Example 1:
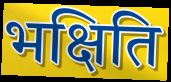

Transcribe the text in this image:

भक्षिति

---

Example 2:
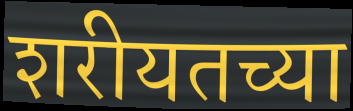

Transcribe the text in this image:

शरीयतच्या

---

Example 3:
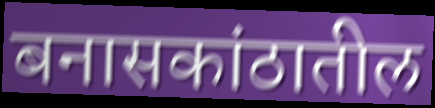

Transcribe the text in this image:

बनासकांठातील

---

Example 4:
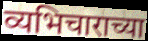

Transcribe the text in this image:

व्यभिचाराच्या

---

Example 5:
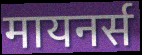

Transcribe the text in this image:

मायनर्स